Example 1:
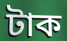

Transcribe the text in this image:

টাক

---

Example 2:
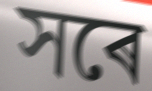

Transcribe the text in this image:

সৰে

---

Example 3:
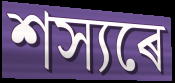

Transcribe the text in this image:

শস্যৰে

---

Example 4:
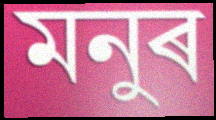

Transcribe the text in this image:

মনুৰ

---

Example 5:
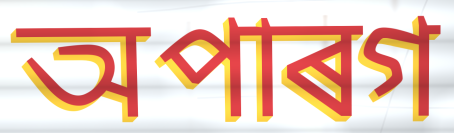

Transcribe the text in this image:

অপাৰগ